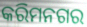
କରିମନଗର